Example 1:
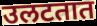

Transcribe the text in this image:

उलटतात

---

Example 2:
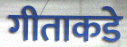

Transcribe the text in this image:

गीताकडे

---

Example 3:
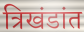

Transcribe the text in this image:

त्रिखंडांत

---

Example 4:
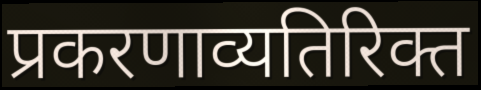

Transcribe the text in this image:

प्रकरणाव्यतिरिक्त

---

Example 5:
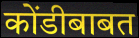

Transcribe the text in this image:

कोंडीबाबत